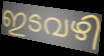
ഇടവഴി